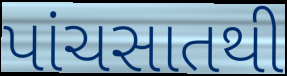
પાંચસાતથી